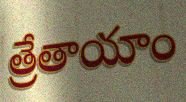
త్రేతాయాం